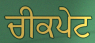
ਚੀਕਪੇਟ